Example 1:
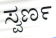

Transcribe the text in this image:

ಸ್ವರ್ಣ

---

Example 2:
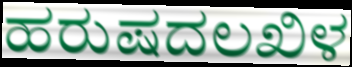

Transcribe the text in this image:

ಹರುಷದಲಖಿಳ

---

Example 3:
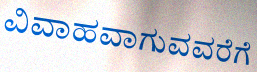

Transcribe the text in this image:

ವಿವಾಹವಾಗುವವರೆಗೆ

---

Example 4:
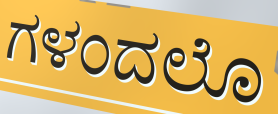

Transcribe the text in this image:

ಗಳಂದಲೊ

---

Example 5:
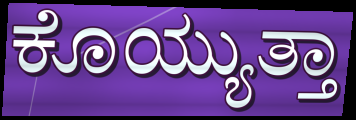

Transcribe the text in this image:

ಕೊಯ್ಯುತ್ತಾ